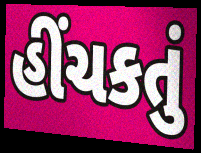
હીંચકતું